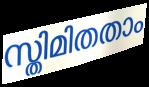
സ്തിമിതതാം